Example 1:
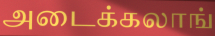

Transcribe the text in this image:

அடைக்கலாங்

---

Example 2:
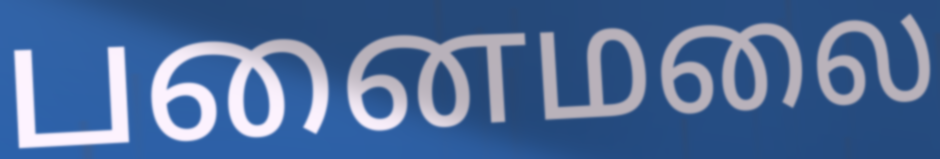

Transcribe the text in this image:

பனைமலை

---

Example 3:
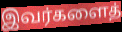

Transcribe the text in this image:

இவர்களைத்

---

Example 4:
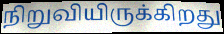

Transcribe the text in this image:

நிறுவியிருக்கிறது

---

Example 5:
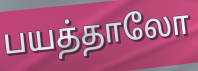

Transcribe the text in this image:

பயத்தாலோ